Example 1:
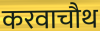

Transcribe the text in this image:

करवाचौथ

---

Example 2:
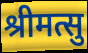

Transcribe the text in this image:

श्रीमत्सु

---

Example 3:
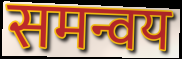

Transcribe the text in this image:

समन्वय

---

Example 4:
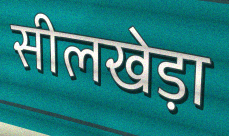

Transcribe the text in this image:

सीलखेड़ा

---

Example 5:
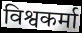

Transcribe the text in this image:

विश्वकर्मा